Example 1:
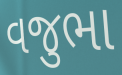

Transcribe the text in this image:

વજુભા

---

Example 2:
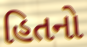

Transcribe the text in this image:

હિતનો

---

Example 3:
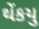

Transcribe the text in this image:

થેંકયુ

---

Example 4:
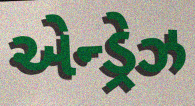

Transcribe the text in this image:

એન્ડ્રેઝ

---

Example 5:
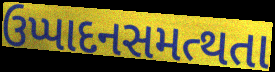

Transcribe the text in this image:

ઉપ્પાદનસમત્થતા